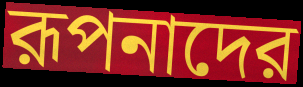
রূপনাদের